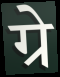
ग्रे